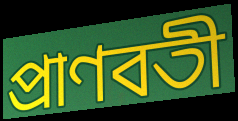
প্রাণবতী